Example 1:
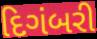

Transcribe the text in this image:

દિગંબરી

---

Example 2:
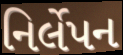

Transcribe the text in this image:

નિર્લેપન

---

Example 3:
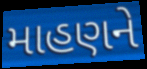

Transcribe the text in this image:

માહણને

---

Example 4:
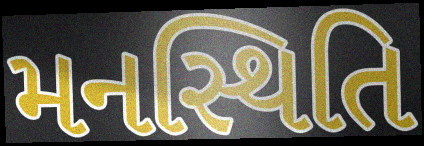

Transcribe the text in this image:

મનસ્થિતિ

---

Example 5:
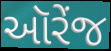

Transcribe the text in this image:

ઑરેંજ